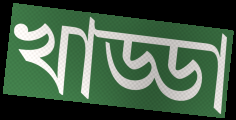
খাড্ডা